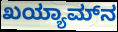
ಖಯ್ಯಾಮ್‌ನ